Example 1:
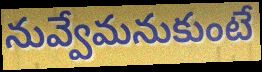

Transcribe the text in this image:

నువ్వేమనుకుంటే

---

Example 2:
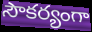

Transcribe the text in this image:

సౌకర్యంగా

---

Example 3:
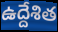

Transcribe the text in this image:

ఉద్దేశిత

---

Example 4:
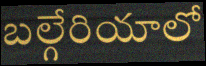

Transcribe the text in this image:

బల్గేరియాలో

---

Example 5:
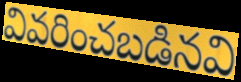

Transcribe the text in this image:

వివరించబడినవి